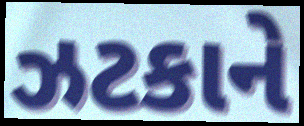
ઝટકાને